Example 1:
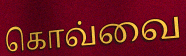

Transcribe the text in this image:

கொவ்வை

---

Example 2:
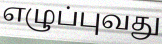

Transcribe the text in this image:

எழுப்புவது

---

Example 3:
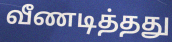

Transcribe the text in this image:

வீணடித்தது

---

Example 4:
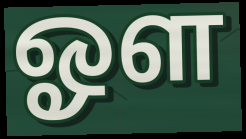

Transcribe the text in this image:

ஓள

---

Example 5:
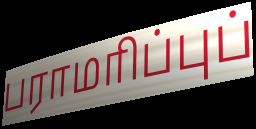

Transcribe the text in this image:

பராமரிப்புப்